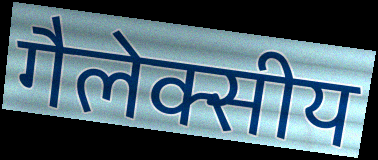
गैलेक्सीय